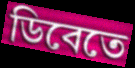
ডিবেতে